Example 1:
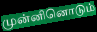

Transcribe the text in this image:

முன்னினொடும்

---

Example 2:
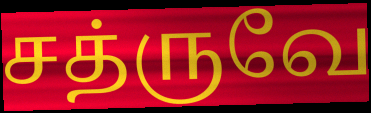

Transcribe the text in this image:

சத்ருவே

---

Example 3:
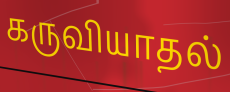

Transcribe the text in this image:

கருவியாதல்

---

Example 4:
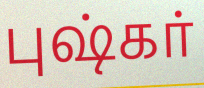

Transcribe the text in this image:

புஷ்கர்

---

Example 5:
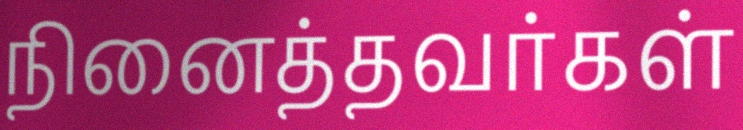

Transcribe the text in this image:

நினைத்தவர்கள்